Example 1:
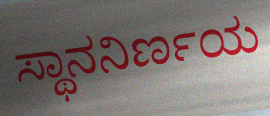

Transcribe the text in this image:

ಸ್ಥಾನನಿರ್ಣಯ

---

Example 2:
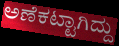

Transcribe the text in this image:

ಅಣೆಕಟ್ಟಾಗಿದ್ದು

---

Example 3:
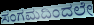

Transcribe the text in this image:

ಸಂಗಮದಿಂದಲೇ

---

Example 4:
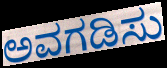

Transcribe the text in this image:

ಅವಗಡಿಸು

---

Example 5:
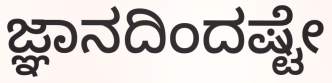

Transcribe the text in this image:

ಜ್ಞಾನದಿಂದಷ್ಟೇ